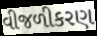
વીજળીકરણ